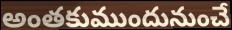
అంతకుముందునుంచే